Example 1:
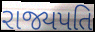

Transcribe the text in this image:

રાજ્યપતિ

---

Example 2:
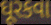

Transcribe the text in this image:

ઘૂરકવા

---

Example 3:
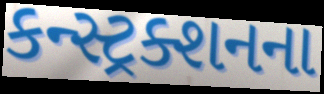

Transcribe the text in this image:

કન્સ્ટ્રક્શનના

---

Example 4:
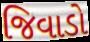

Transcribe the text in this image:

જિવાડો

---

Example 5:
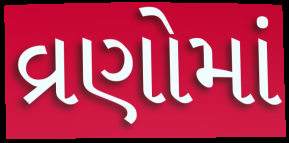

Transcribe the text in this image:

વ્રણોમાં